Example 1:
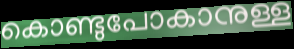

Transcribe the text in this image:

കൊണ്ടുപോകാനുള്ള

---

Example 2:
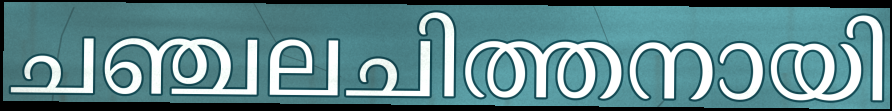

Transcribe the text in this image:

ചഞ്ചലചിത്തനായി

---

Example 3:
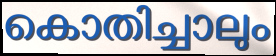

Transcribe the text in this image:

കൊതിച്ചാലും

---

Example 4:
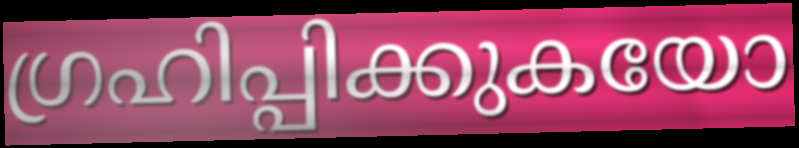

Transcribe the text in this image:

ഗ്രഹിപ്പിക്കുകയോ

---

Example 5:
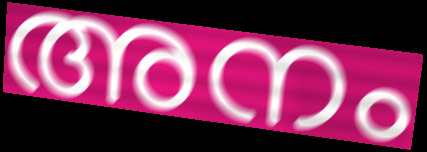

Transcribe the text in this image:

അനം